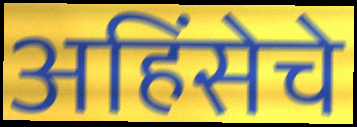
अहिंसेचे